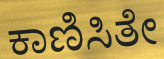
ಕಾಣಿಸಿತೇ